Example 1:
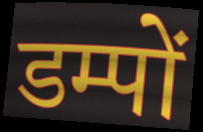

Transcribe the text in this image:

डम्पों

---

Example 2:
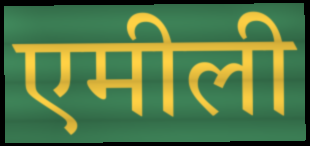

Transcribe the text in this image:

एमीली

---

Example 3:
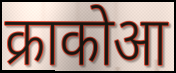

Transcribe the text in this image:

क्राकोआ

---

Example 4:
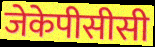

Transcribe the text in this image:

जेकेपीसीसी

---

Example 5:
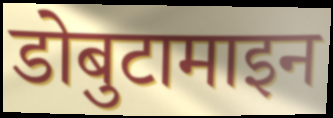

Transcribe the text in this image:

डोबुटामाइन